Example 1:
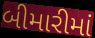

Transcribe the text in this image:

બીમારીમાં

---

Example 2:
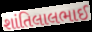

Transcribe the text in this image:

શાંતિલાલભાઈ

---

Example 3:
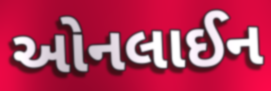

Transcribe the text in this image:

ઓનલાઈન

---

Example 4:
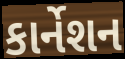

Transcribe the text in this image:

કાર્નેશન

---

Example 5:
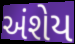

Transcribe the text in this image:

અંશેય